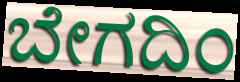
ಬೇಗದಿಂ